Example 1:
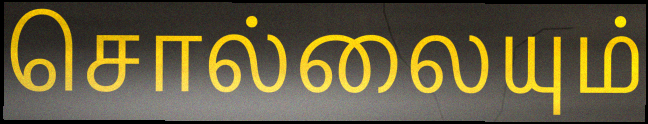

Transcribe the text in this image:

சொல்லையும்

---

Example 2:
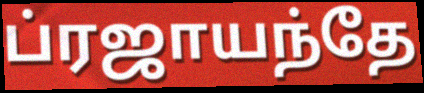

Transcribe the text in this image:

ப்ரஜாயந்தே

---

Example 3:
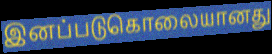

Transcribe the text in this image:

இனப்படுகொலையானது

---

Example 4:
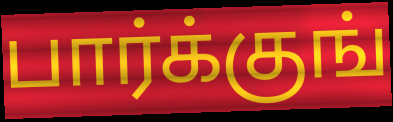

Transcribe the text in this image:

பார்க்குங்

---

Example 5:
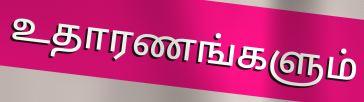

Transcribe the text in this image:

உதாரணங்களும்